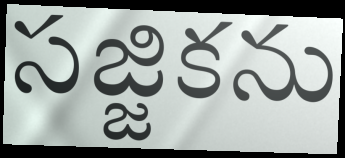
సజ్జికను